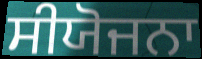
ਸੀਯੋਜਨਾ